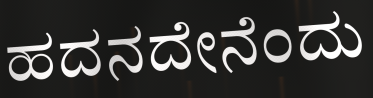
ಹದನದೇನೆಂದು